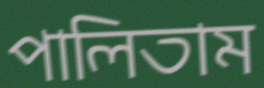
পালিতাম